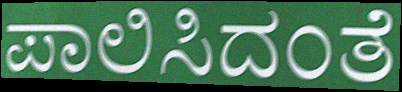
ಪಾಲಿಸಿದಂತೆ